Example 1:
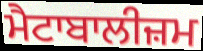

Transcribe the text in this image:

ਮੈਟਾਬਾਲੀਜ਼ਮ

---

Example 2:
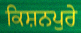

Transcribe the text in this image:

ਕਿਸ਼ਨਪੁਰੇ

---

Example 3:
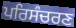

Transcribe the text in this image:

ਪਰਿਸੰਚਰਣ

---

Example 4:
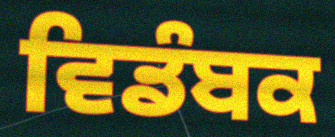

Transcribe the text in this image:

ਵਿਡੰਬਕ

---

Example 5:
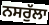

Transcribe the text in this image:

ਨਸਰੁੱਲਾ